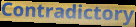
Contradictory